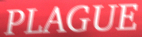
PLAGUE